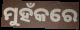
ମୁହଁକରେ